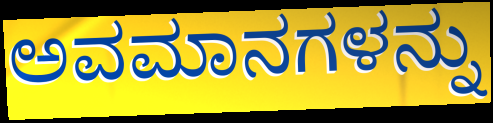
ಅವಮಾನಗಳನ್ನು